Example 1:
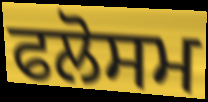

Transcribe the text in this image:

ਫਲੋਸਮ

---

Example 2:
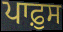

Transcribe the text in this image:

ਪਾਫ਼ੁਸ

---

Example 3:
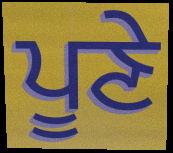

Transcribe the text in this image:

ਪੂਣੇ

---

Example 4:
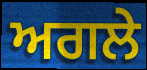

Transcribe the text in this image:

ਅਗਲੇ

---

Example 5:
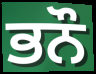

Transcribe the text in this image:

ਭਨੌ